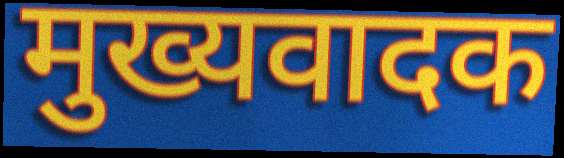
मुख्यवादक